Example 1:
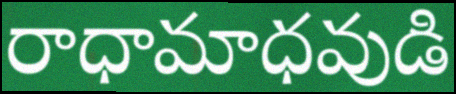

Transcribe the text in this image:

రాధామాధవుడి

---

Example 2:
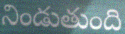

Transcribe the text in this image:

నిండుతుంది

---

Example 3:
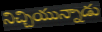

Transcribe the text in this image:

నిచ్చియున్నాడు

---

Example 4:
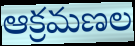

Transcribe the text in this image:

ఆక్రమణల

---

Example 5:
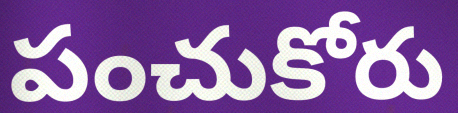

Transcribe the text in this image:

పంచుకోరు